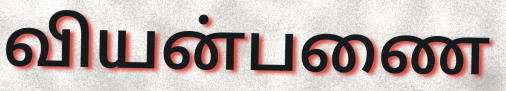
வியன்பணை